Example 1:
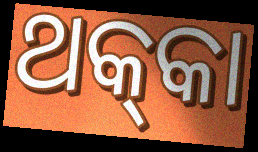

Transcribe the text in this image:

ଥକ୍‍କା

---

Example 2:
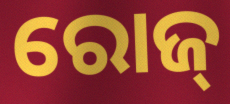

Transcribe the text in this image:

ରୋଜ୍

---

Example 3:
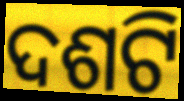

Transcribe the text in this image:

ଦଶଟି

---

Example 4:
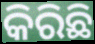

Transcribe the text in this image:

କିରିଛି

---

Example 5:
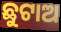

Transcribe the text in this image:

ଛୁଟାଅ